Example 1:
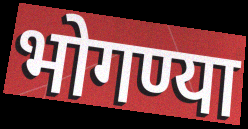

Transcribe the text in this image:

भोगण्या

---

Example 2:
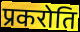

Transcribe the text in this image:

प्रकरोति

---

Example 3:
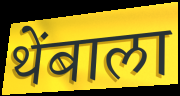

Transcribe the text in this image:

थेंबाला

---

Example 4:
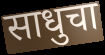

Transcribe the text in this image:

साधुचा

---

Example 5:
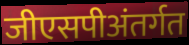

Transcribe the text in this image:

जीएसपीअंतर्गत